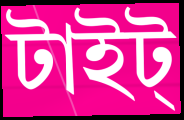
টাইট্